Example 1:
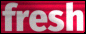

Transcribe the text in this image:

fresh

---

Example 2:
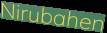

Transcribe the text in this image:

Nirubahen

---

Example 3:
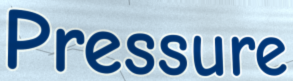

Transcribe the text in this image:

Pressure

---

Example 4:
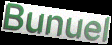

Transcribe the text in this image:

Bunuel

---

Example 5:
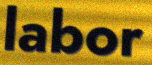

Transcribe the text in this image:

labor